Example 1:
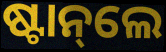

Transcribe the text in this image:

ଷ୍ଟାନ୍‌ଲେ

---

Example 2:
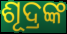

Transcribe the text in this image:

ଶୂଦ୍ରଙ୍କ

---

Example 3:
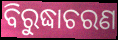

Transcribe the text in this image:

ବିରୁଦ୍ଧାଚରଣ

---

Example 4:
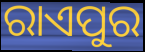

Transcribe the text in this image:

ରାଏପୁର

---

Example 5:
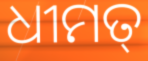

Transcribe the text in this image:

ଧୀମତ୍